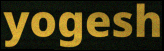
yogesh